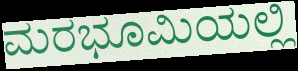
ಮರಭೂಮಿಯಲ್ಲಿ